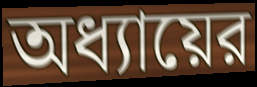
অধ্যায়ের